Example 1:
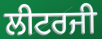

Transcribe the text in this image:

ਲੀਟਰਜੀ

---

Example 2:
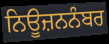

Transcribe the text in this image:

ਨਿਊਜ਼ਨਨੰਬਰ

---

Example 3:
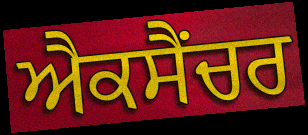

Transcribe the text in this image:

ਐਕਸੈਂਚਰ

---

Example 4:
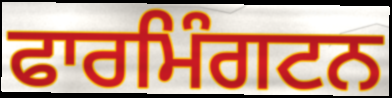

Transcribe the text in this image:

ਫਾਰਮਿੰਗਟਨ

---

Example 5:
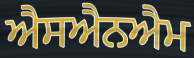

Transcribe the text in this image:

ਐਸਐਨਐਮ